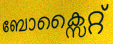
ബോക്സൈറ്റ്